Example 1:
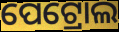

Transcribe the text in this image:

ପେଟ୍ରୋଲ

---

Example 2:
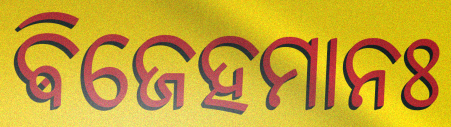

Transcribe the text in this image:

ଵିଜେହମାନଃ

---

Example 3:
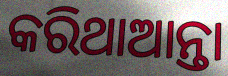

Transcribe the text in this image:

କରିଥାଆନ୍ତା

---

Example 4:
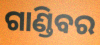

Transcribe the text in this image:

ଗାଣ୍ଡିବର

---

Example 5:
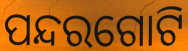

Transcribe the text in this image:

ପନ୍ଦରଗୋଟି